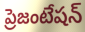
ప్రెజంటేషన్